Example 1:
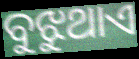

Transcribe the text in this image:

ବୁଝୁଥାଏ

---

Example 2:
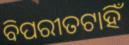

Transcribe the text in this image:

ବିପରୀତଟାହିଁ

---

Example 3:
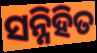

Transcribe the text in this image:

ସନ୍ନିହିତ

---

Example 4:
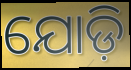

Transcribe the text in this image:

ଯୋଡ଼ି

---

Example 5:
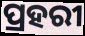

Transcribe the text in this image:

ପ୍ରହରୀ